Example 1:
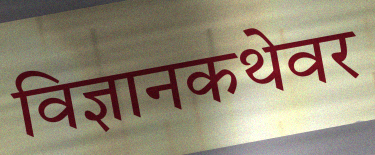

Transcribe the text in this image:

विज्ञानकथेवर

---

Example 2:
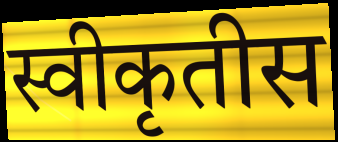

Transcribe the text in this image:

स्वीकृतीस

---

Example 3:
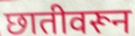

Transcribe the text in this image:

छातीवरून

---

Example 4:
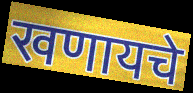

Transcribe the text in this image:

खणायचे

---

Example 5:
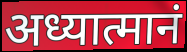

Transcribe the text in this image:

अध्यात्मानं